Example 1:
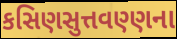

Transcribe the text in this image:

કસિણસુત્તવણ્ણના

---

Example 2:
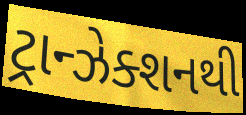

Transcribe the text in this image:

ટ્રાન્ઝેક્શનથી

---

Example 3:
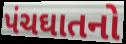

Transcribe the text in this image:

પંચઘાતનો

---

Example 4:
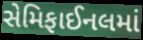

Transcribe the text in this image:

સેમિફાઈનલમાં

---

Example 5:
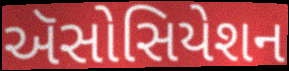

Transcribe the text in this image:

ઍસોસિયેશન